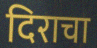
दिराचा